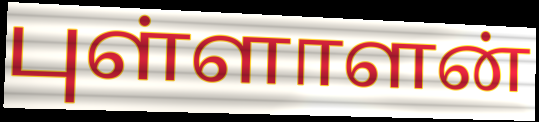
புள்ளாளன்